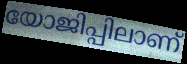
യോജിപ്പിലാണ്